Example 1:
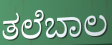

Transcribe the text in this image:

ತಲೆಬಾಲ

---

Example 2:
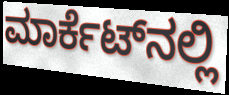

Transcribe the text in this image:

ಮಾರ್ಕೆಟ್‍ನಲ್ಲಿ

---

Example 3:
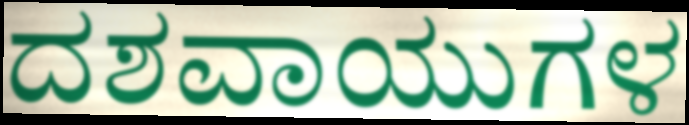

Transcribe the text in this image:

ದಶವಾಯುಗಳ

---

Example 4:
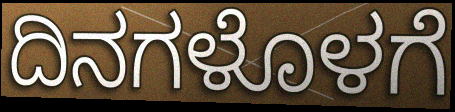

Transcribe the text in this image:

ದಿನಗಳೊಳಗೆ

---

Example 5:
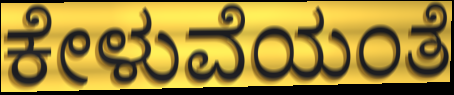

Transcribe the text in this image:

ಕೇಳುವೆಯಂತೆ